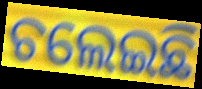
ଚଲେଇଛି